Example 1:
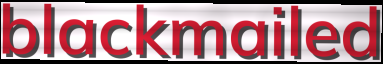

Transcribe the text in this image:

blackmailed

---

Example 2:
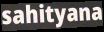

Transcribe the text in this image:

sahityana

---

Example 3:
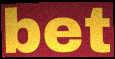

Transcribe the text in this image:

bet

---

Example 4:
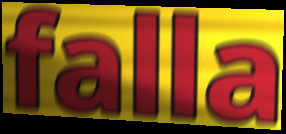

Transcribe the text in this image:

falla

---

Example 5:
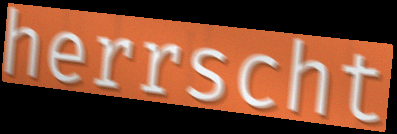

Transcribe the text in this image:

herrscht